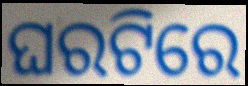
ଘରଟିରେ